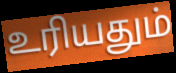
உரியதும்